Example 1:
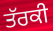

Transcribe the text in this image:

ਤੱਰਕੀ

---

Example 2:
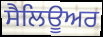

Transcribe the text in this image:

ਸੈਲਿਊਅਰ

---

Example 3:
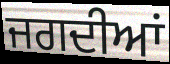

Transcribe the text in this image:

ਜਗਦੀਆਂ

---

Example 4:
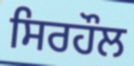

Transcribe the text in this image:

ਸਿਰਹੌਲ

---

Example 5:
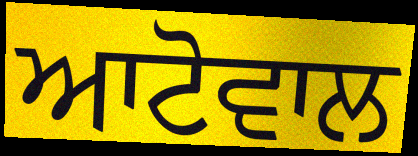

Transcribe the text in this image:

ਆਟੋਵਾਲ